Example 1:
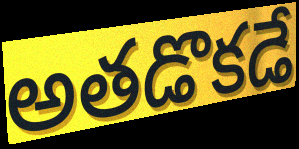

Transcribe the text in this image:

అతడొకడే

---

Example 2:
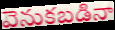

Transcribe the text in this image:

వెనుకబడినా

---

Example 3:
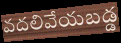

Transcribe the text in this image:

వదలివేయబడ్డ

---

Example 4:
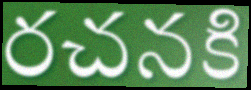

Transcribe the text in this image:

రచనకి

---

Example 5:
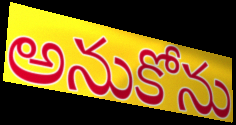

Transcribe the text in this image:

అనుకోను